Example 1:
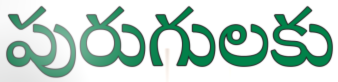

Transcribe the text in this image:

పురుగులకు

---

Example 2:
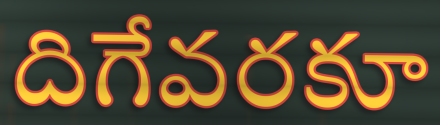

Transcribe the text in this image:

దిగేవరకూ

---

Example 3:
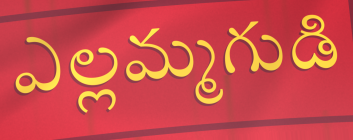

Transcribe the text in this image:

ఎల్లమ్మగుడి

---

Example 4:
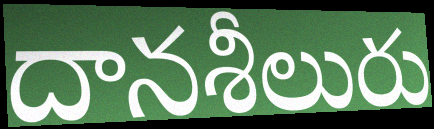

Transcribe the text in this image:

దానశీలురు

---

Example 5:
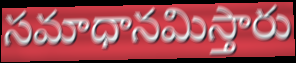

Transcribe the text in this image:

సమాధానమిస్తారు